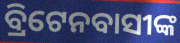
ବ୍ରିଟେନବାସୀଙ୍କ